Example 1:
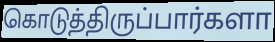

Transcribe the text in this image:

கொடுத்திருப்பார்களா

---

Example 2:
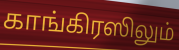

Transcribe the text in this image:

காங்கிரஸிலும்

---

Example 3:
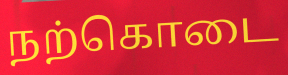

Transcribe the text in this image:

நற்கொடை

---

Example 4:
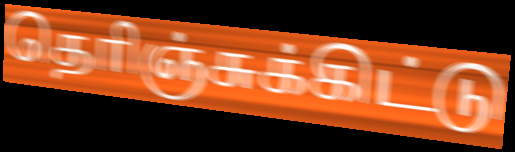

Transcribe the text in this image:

தெரிஞ்சுக்கிட்டு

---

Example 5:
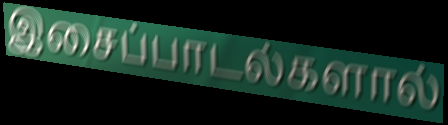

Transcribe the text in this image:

இசைப்பாடல்களால்